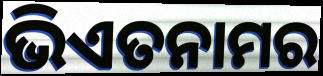
ଭିଏତନାମର